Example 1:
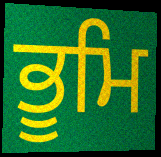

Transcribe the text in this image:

ਭੂਮਿ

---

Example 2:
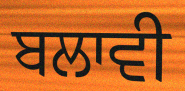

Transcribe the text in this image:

ਬਲਾਵੀ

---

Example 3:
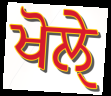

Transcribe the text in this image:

ਖੋਲੑੇ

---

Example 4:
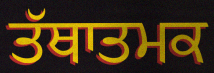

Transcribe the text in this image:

ਤੱਥਾਤਮਕ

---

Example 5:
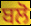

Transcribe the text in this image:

ਬਲੋ